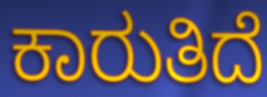
ಕಾರುತಿದೆ